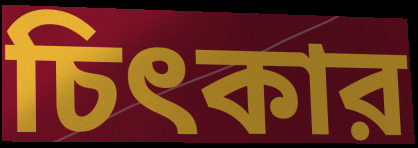
চিৎকার